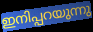
ഇനിപ്പറയുന്നു